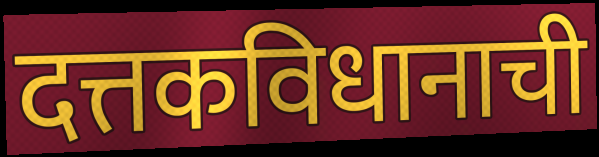
दत्तकविधानाची